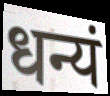
धन्यं